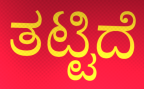
ತಟ್ಟಿದೆ